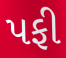
પફી